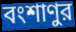
বংশাণুর